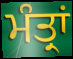
ਮੰਤ੍ਰਾਂ